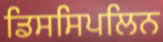
ਡਿਸਸਿਪਲਿਨ